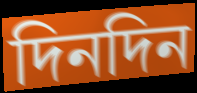
দিনদিন